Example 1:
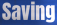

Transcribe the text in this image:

Saving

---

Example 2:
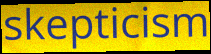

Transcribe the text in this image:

skepticism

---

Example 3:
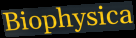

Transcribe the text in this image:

Biophysica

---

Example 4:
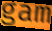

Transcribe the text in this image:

gam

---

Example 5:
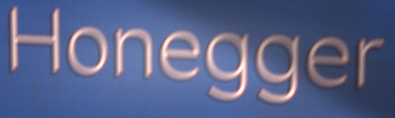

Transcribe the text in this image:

Honegger